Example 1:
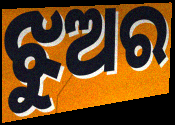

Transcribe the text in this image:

ଝୁଅର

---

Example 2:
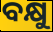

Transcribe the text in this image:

ବକ୍ଷୁ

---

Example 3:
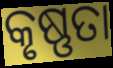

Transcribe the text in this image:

କୃଷ୍ଣତା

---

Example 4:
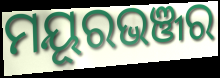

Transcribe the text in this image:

ମୟୂରଭଞ୍ଜର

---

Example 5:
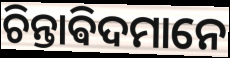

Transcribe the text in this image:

ଚିନ୍ତାଵିଦମାନେ